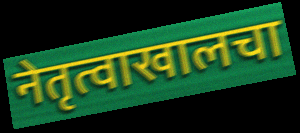
नेतृत्वाखालचा